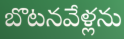
బొటనవేళ్లను